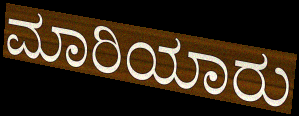
ಮಾರಿಯಾರು